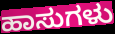
ಹಾಸುಗಳು